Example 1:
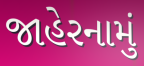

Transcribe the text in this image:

જાહેરનામું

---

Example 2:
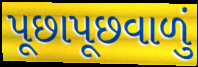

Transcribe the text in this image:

પૂછાપૂછવાળું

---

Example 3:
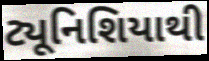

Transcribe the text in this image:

ટ્યૂનિશિયાથી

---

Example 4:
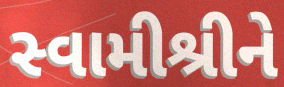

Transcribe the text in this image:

સ્વામીશ્રીને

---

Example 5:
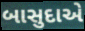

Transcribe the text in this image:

બાસુદાએ